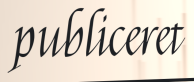
publiceret